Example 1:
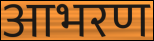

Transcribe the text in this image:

आभरण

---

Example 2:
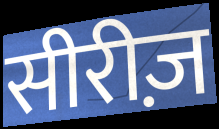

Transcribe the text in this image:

सीरीज़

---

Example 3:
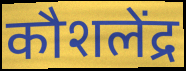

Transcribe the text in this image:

कौशलेंद्र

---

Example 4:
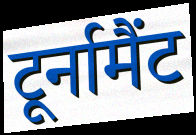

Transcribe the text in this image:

टूर्नामैंट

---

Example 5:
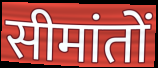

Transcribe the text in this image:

सीमांतों